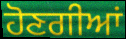
ਹੋਣਗੀਆਂ